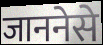
जाननेसे